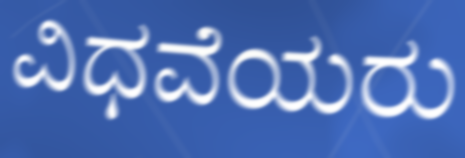
ವಿಧವೆಯರು